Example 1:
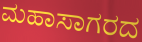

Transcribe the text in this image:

ಮಹಾಸಾಗರದ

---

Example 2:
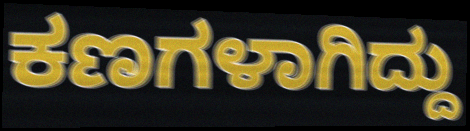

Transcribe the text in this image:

ಕಣಗಳಾಗಿದ್ದು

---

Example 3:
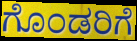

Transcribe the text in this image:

ಗೊಂಡರಿಗೆ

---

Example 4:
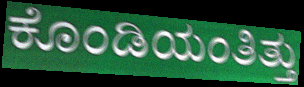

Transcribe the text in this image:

ಕೊಂಡಿಯಂತಿತ್ತು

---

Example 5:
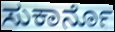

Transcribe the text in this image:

ಸುಕಾರ್ನೊ